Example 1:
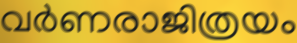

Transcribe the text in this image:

വർണരാജിത്രയം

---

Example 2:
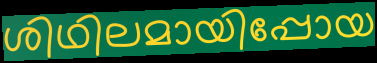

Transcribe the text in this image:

ശിഥിലമായിപ്പോയ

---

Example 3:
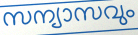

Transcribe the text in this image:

സന്യാസവും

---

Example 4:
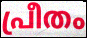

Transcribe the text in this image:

പ്രീതം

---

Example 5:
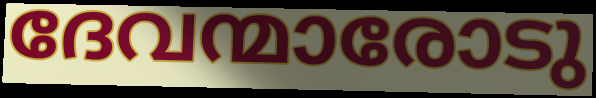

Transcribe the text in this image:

ദേവന്മാരോടു